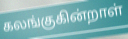
கலங்குகின்றாள்